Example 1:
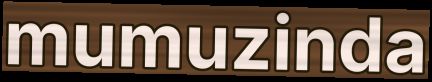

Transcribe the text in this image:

mumuzinda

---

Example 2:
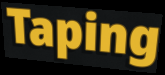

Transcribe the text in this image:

Taping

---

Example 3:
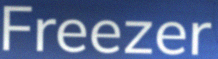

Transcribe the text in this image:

Freezer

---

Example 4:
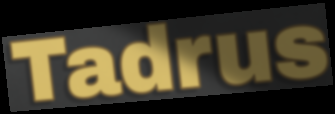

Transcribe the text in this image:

Tadrus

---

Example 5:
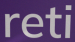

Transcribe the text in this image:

reti